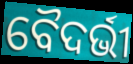
ବୈଦର୍ଭୀ